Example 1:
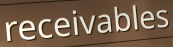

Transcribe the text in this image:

receivables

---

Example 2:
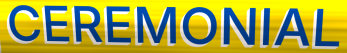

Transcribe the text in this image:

CEREMONIAL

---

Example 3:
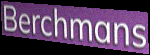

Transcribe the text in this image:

Berchmans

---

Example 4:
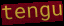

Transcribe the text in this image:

tengu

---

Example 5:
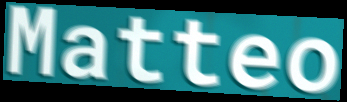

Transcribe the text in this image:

Matteo